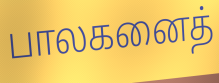
பாலகனைத்